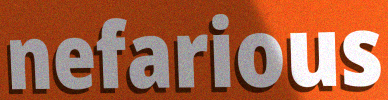
nefarious